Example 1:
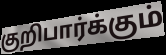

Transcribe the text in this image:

குறிபார்க்கும்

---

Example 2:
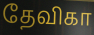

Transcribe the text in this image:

தேவிகா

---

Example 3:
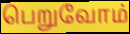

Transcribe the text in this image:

பெறுவோம்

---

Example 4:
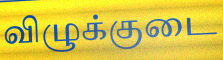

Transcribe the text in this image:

விழுக்குடை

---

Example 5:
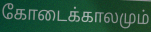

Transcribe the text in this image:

கோடைக்காலமும்